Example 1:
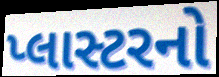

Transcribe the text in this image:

પ્લાસ્ટરનો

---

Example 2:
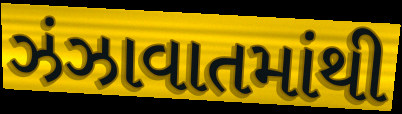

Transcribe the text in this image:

ઝંઝાવાતમાંથી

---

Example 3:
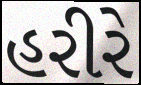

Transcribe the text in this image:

હરીરે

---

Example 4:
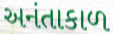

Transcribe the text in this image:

અનંતાકાળ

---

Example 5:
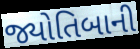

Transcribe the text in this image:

જ્યોતિબાની